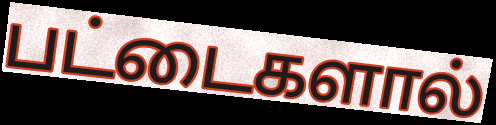
பட்டைகளால்